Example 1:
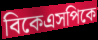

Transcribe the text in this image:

বিকেএসপিকে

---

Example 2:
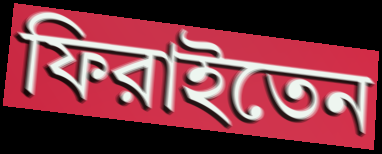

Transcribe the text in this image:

ফিরাইতেন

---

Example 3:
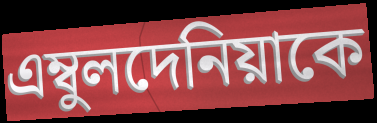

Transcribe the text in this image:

এম্বুলদেনিয়াকে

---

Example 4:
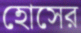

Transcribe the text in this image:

হোসের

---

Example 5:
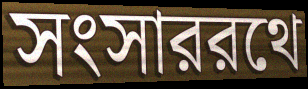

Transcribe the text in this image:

সংসাররথে